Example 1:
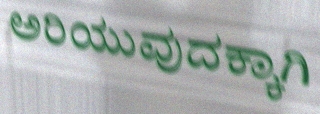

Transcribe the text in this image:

ಅರಿಯುವುದಕ್ಕಾಗಿ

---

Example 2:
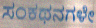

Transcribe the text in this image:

ಸಂಕಥನಗಳೇ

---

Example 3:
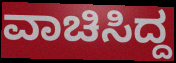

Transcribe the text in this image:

ವಾಚಿಸಿದ್ದ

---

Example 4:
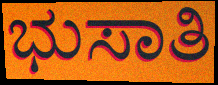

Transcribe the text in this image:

ಭುಸಾತಿ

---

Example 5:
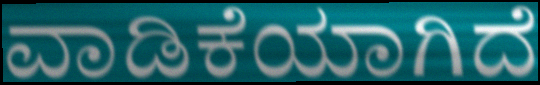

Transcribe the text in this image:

ವಾಡಿಕೆಯಾಗಿದೆ